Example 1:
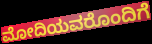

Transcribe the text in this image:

ಮೋದಿಯವರೊಂದಿಗೆ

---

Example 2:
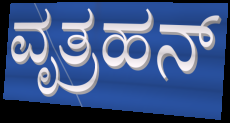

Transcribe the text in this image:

ವೃತ್ರಹನ್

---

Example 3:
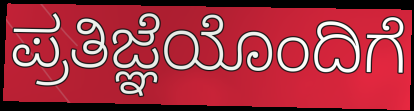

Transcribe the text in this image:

ಪ್ರತಿಜ್ಞೆಯೊಂದಿಗೆ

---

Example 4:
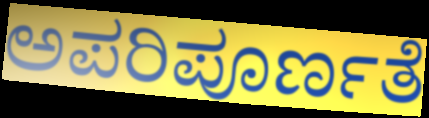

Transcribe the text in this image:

ಅಪರಿಪೂರ್ಣತೆ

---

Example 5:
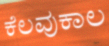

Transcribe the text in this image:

ಕೆಲವುಕಾಲ